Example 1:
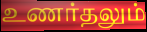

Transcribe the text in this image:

உணர்தலும்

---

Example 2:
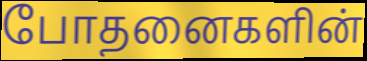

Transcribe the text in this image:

போதனைகளின்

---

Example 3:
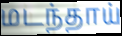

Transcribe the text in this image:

மடந்தாய்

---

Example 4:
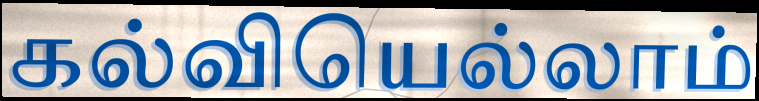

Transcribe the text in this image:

கல்வியெல்லாம்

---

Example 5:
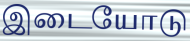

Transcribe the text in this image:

இடையோடு